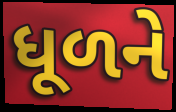
ધૂળને